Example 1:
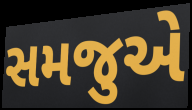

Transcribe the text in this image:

સમજુએ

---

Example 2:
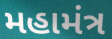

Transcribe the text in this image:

મહામંત્ર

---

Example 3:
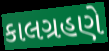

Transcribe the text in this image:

કાલગ્રહણે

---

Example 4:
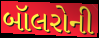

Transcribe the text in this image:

બૉલરોની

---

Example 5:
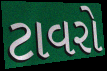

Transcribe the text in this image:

ટાવરો